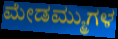
ಮೇಡಮ್ಮುಗಳ